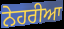
ਨੇਹਰੀਆ